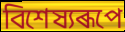
বিশেষ্যৰূপে